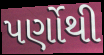
પર્ણોથી